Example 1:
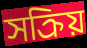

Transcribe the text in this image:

সক্রিয়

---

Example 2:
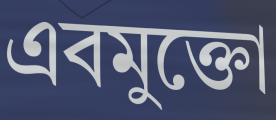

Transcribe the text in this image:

এবমুক্তো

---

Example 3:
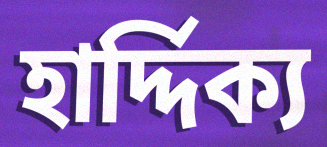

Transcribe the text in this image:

হার্দ্দিক্য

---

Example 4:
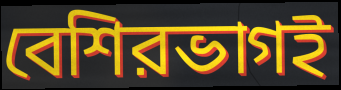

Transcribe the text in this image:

বেশিরভাগই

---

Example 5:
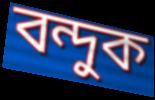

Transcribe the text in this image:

বন্দুক